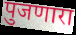
पुजणारा